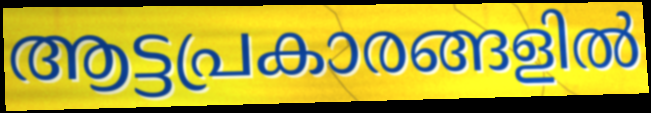
ആട്ടപ്രകാരങ്ങളിൽ